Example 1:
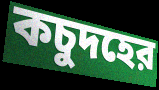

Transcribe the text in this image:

কচুদহের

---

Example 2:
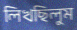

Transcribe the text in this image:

লিখছিলুম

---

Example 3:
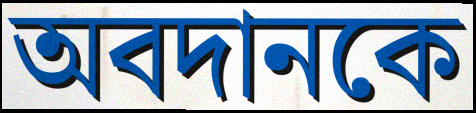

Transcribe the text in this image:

অবদানকে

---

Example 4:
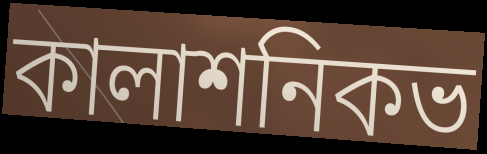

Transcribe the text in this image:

কালাশনিকভ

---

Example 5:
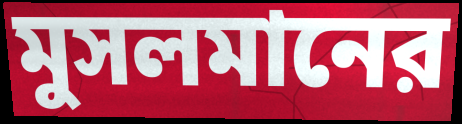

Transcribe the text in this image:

মুসলমানের